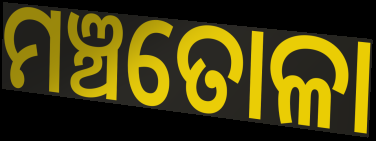
ମଞ୍ଚତୋଳା